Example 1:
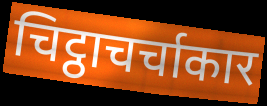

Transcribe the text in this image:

चिट्ठाचर्चाकार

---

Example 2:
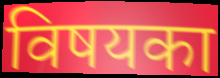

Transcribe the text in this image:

विषयका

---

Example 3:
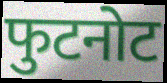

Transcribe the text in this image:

फुटनोट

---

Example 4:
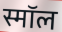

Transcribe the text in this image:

स्मॉल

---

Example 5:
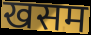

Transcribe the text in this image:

खसम